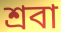
শ্রবা